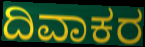
ದಿವಾಕರ